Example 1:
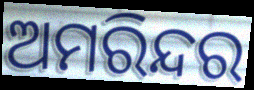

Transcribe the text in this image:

ଅମରିନ୍ଦର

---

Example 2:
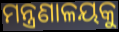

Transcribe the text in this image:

ମନ୍ତ୍ରଣାଳୟକୁ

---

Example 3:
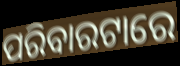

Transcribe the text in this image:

ପରିବାରଟାରେ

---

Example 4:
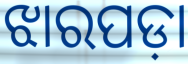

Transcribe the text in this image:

ଝାରପଡ଼ା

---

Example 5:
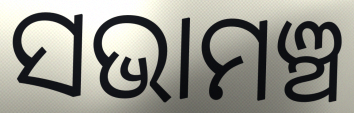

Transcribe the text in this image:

ସଭାମଞ୍ଚ